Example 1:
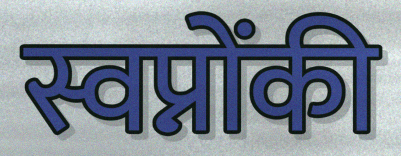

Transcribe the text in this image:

स्वप्नोंकी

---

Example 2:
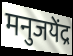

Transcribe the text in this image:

मनुजयेंद्र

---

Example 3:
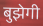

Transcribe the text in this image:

बुझेगी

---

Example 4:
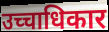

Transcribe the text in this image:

उच्चाधिकार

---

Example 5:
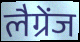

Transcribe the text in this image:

लैग्रेंज